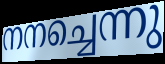
നനച്ചെന്നു